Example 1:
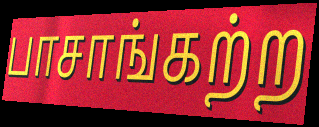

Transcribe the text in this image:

பாசாங்கற்ற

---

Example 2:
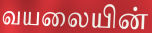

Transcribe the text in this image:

வயலையின்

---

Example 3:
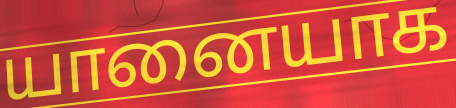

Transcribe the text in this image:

யானையாக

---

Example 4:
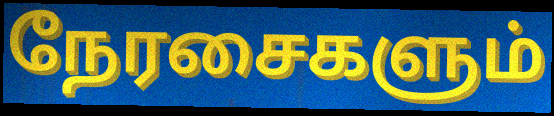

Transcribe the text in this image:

நேரசைகளும்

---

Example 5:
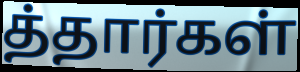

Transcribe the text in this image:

த்தார்கள்